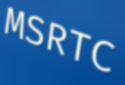
MSRTC